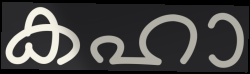
കഹാ